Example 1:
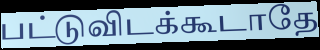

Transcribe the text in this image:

பட்டுவிடக்கூடாதே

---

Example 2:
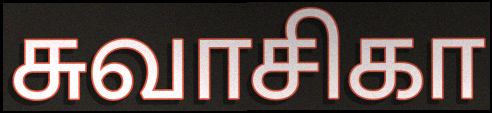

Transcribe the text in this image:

சுவாசிகா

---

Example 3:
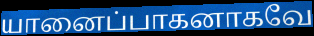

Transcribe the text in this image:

யானைப்பாகனாகவே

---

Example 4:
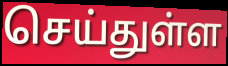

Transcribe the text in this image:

செய்துள்ள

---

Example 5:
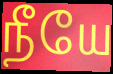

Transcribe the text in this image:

நீயே